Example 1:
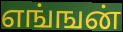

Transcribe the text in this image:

எங்ஙன்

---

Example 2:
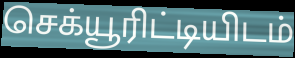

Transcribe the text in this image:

செக்யூரிட்டியிடம்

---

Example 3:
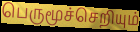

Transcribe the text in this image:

பெருமூச்செறியும்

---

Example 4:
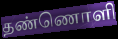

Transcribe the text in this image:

தண்ணொளி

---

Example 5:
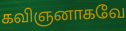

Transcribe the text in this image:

கவிஞனாகவே